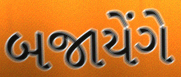
બજાયેંગે